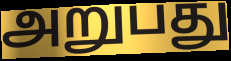
அறுபது